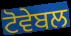
ਟੋਵੇਬਲ